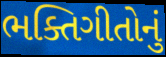
ભક્તિગીતોનું